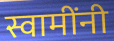
स्वामींनी